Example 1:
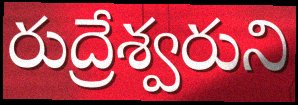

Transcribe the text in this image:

రుద్రేశ్వరుని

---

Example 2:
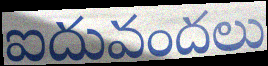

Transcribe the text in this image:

ఐదువందలు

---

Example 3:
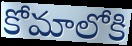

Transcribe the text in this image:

కోమాలోకి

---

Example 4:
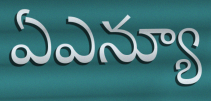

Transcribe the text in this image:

ఏఎన్యూ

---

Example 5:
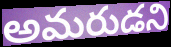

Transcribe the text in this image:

అమరుడని